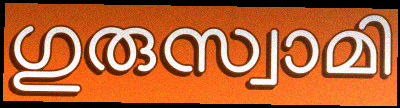
ഗുരുസ്വാമി